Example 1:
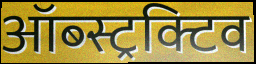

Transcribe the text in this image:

ऑब्स्ट्रक्टिव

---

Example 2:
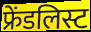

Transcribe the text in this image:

फ्रेंडलिस्ट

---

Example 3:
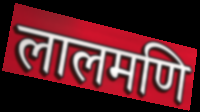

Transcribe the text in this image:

लालमणि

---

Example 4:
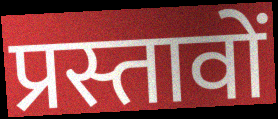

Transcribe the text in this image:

प्रस्‍तावों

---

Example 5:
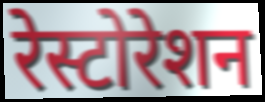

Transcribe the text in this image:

रेस्टोरेशन